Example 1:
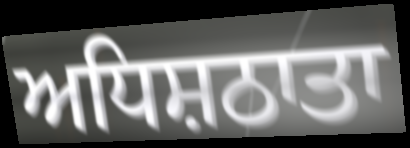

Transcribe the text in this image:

ਅਧਿਸ਼ਠਾਤਾ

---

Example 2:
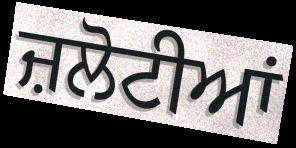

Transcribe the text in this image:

ਜ਼ਲੋਟੀਆਂ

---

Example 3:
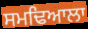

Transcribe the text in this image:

ਸਮਢਿਆਲਾ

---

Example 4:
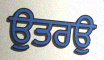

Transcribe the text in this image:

ਉਤਰਉ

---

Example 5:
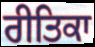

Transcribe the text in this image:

ਰੀਤਿਕਾ